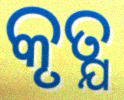
କୃତ୍ଯ